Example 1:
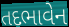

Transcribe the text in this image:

તદભાવેન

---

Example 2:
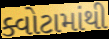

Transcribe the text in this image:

ક્વોટામાંથી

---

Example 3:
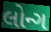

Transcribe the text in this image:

લોન્ગ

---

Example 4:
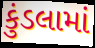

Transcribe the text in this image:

કુંડલામાં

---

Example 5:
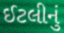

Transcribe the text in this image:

ઈટલીનું